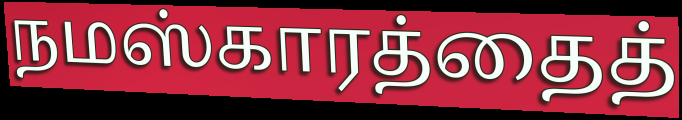
நமஸ்காரத்தைத்